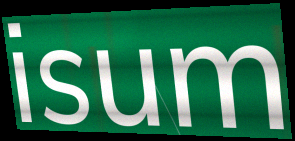
isum